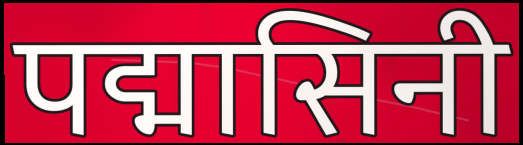
पद्मासिनी